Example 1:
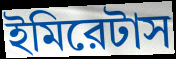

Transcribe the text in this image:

ইমিরেটাস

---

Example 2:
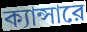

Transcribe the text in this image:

ক্যান্সারে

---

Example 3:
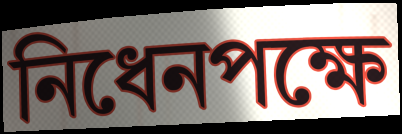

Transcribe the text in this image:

নিধেনপক্ষে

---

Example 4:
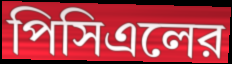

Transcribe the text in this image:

পিসিএলের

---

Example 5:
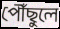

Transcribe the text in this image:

পৌঁছুলে